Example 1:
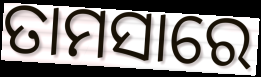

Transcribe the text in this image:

ତାମସାରେ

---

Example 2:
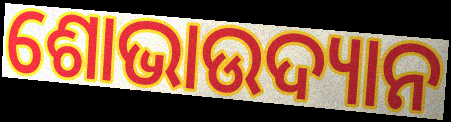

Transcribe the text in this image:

ଶୋଭାଉଦ୍ୟାନ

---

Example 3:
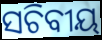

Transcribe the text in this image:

ସଚିବୀୟ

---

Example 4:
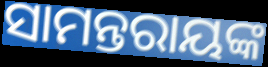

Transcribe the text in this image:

ସାମନ୍ତରାୟଙ୍କ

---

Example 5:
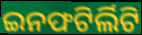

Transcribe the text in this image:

ଇନଫଟିର୍ଲିଟି